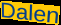
Dalen